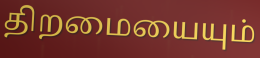
திறமையையும்